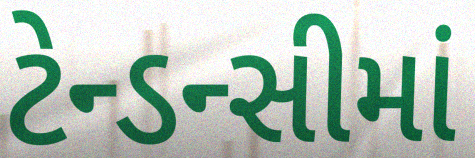
ટેન્ડન્સીમાં